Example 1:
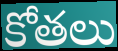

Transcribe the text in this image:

కోతలు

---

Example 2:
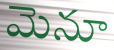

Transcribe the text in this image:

మెనూ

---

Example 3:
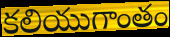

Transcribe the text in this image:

కలియుగాంతం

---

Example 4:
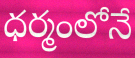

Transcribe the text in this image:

ధర్మంలోనే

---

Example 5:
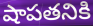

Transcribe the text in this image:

షాపతనికి